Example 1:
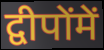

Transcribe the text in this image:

द्वीपोंमें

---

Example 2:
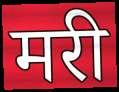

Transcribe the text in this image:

मरी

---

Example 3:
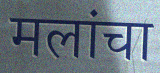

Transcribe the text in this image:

मलांचा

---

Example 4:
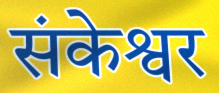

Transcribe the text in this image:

संकेश्वर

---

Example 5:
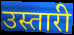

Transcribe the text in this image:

उस्तारी